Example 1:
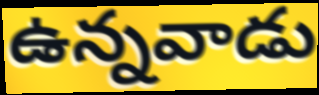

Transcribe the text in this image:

ఉన్నవాడు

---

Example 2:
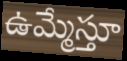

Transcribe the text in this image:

ఉమ్మేస్తూ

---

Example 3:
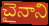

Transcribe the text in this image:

చైనాని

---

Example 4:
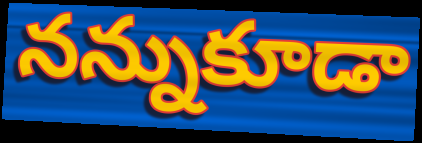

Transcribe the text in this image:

నన్నుకూడా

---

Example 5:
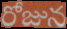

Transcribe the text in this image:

రోజున